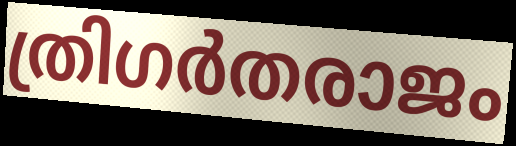
ത്രിഗർതരാജം